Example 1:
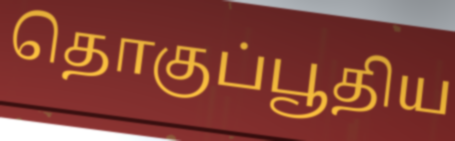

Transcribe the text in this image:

தொகுப்பூதிய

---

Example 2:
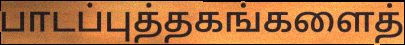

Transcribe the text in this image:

பாடப்புத்தகங்களைத்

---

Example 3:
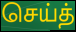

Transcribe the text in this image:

செய்த்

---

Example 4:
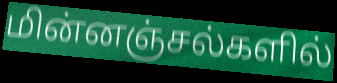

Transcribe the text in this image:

மின்னஞ்சல்களில்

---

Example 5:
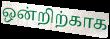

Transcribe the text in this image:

ஒன்றிற்காக